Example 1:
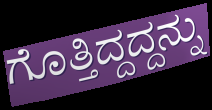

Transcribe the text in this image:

ಗೊತ್ತಿದ್ದದ್ದನ್ನು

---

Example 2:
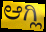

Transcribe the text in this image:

ಆಗ್ಲಿ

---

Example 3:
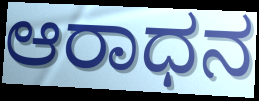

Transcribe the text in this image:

ಆರಾಧನ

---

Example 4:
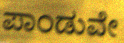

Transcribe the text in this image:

ಪಾಂಡುವೇ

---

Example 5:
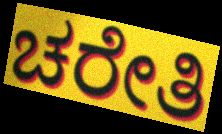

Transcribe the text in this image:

ಚರೇತಿ